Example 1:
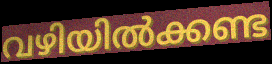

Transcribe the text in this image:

വഴിയിൽക്കണ്ട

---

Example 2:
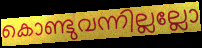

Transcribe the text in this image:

കൊണ്ടുവന്നില്ലല്ലോ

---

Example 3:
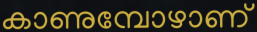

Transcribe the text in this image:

കാണുമ്പോഴാണ്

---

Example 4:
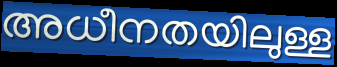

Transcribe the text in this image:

അധീനതയിലുള്ള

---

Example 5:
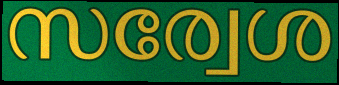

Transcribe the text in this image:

സര്വേശ